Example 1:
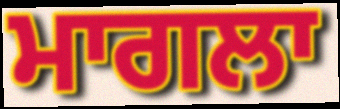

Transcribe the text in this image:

ਮਾਗਲਾ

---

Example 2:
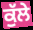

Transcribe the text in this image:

ਕੁੱਲੇ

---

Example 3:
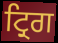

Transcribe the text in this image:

ਟ੍ਰਿਗ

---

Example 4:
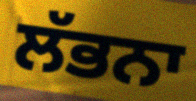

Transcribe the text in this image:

ਲੱਭਨਾ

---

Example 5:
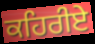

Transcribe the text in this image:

ਕਹਿਰੀਏ